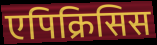
एपिक्रिसिस